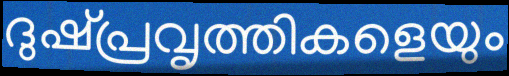
ദുഷ്പ്രവൃത്തികളെയും